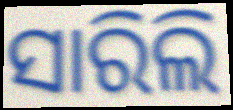
ସାରିଲି